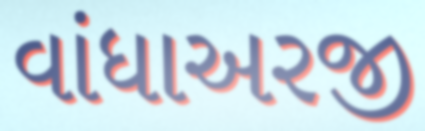
વાંધાઅરજી